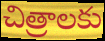
చిత్రాలకు